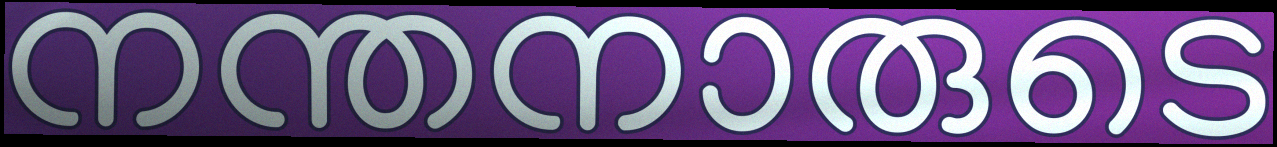
നന്തനാരുടെ